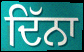
ਦਿੱਨਾ